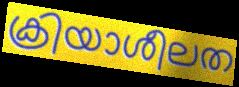
ക്രിയാശീലത